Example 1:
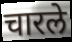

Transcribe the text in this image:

चारले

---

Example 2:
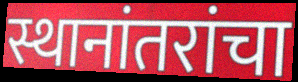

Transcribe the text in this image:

स्थानांतरांचा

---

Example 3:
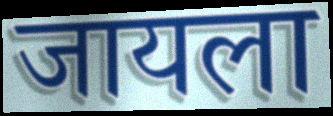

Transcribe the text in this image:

जायला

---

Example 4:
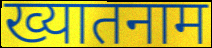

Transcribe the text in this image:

ख्यातनाम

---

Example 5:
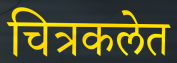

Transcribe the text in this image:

चित्रकलेत